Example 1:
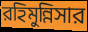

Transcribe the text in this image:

রহিমুন্নিসার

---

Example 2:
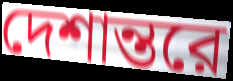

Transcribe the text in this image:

দেশান্তরে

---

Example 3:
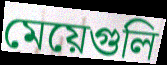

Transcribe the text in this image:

মেয়েগুলি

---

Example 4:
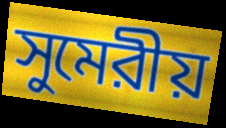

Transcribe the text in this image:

সুমেরীয়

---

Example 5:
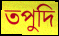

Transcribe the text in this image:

তপুদি